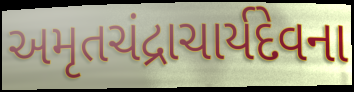
અમૃતચંદ્રાચાર્યદેવના